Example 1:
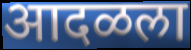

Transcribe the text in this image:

आदळला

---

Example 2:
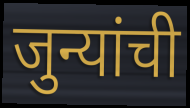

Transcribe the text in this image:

जुन्यांची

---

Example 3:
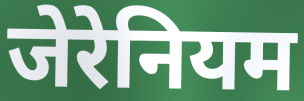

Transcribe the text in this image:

जेरेनियम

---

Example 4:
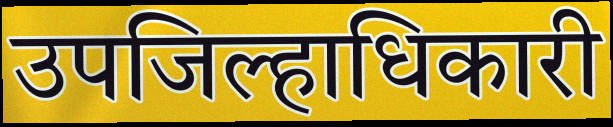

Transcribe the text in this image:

उपजिल्हाधिकारी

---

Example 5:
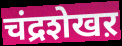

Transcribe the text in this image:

चंद्रशेखऱ